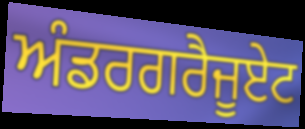
ਅੰਡਰਗਰੈਜੂਏਟ